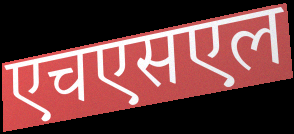
एचएसएल